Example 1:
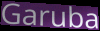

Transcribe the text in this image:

Garuba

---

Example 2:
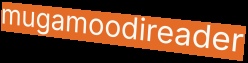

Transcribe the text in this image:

mugamoodireader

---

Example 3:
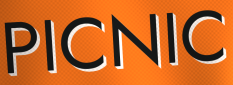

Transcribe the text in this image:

PICNIC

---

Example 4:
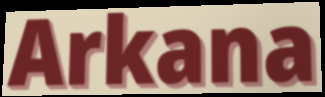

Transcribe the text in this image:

Arkana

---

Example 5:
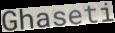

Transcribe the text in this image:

Ghaseti